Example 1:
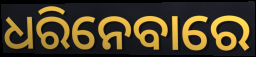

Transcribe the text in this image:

ଧରିନେବାରେ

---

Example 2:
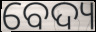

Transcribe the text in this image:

ବେଦ୍ୟ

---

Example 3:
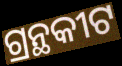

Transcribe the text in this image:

ଗ୍ରନ୍ଥକୀଟ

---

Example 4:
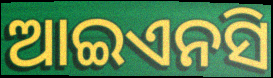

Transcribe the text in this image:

ଆଇଏନସି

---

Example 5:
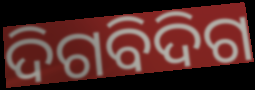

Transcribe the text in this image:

ଦିଗବିଦିଗ